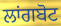
ਲਾਂਗਬੋਟ